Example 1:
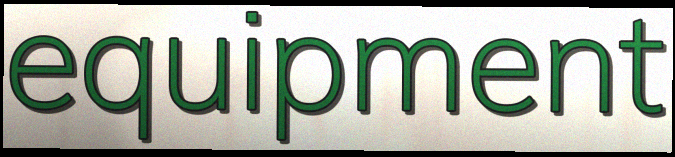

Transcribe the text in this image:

equipment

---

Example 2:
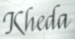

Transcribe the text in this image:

Kheda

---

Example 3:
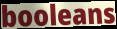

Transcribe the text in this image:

booleans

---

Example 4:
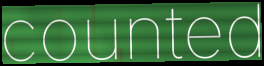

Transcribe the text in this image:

counted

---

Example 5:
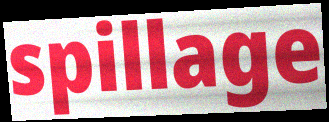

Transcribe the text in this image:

spillage